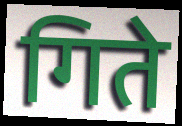
गिते